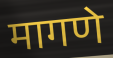
मागणे